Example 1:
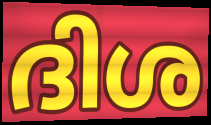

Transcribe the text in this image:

ദിശ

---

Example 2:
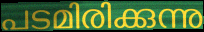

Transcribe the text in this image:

പടമിരിക്കുന്നു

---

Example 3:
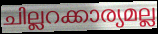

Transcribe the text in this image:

ചില്ലറക്കാര്യമല്ല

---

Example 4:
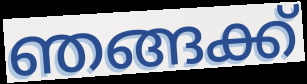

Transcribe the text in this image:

ഞങ്ങക്ക്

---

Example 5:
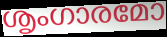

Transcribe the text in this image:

ശൃംഗാരമോ